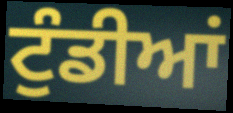
ਟੁੰਡੀਆਂ